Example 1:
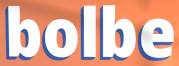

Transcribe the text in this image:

bolbe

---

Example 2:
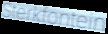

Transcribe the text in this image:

Sterkfontein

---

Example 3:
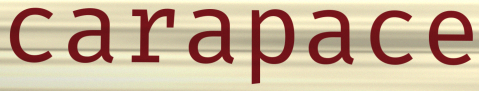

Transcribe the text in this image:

carapace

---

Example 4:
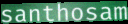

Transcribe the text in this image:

santhosam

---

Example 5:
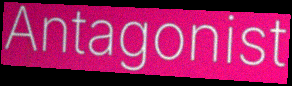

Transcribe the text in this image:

Antagonist